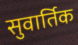
सुवार्तिक